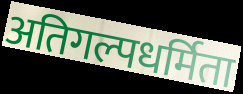
अतिगल्पधर्मिता